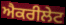
ਐਕਰੀਲੇਟ